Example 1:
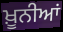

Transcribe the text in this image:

ਖ਼ੂਨੀਆਂ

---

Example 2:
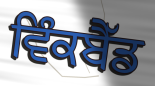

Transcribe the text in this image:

ਵਿੰਕਬੈੱਡ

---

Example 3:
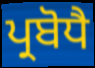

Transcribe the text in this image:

ਪ੍ਰਬੋਧੈ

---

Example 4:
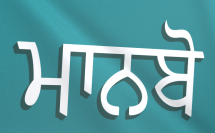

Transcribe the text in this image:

ਮਾਨਬੋ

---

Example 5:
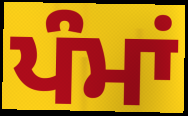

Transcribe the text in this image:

ਪੰਮਾਂ